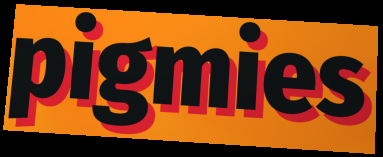
pigmies